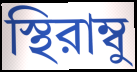
স্থিরাম্বু